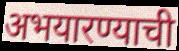
अभयारण्याची